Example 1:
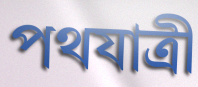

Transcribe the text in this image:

পথযাত্রী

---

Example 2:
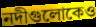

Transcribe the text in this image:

নদীগুলোকেও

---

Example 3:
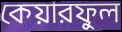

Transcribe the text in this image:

কেয়ারফুল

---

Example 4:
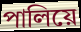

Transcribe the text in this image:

পালিয়ে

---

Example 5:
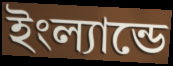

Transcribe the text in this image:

ইংল্যান্ডে